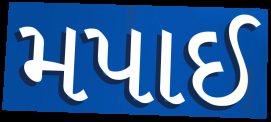
મપાઈ